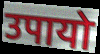
उपायो